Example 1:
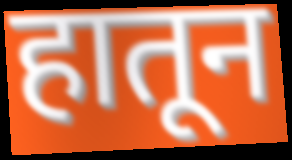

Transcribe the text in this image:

हातून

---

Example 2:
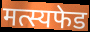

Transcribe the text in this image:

मत्स्यफेड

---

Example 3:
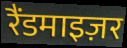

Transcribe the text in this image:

रैंडमाइज़र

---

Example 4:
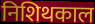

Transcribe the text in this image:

निशिथकाल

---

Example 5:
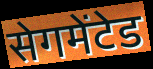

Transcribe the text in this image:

सेगमेंटेड